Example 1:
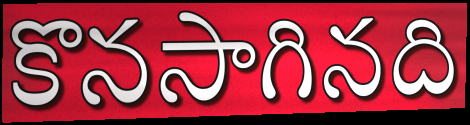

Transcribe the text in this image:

కొనసాగినది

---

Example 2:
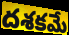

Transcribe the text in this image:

దశకమే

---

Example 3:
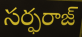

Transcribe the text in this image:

సర్ఫరాజ్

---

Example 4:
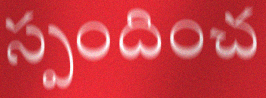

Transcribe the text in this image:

స్పందించ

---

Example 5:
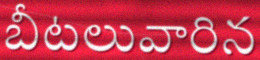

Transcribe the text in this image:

బీటలువారిన